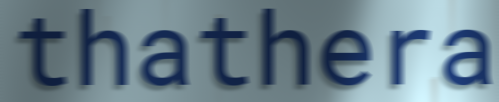
thathera